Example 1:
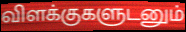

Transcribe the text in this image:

விளக்குகளுடனும்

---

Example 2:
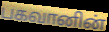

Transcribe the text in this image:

பகவானின்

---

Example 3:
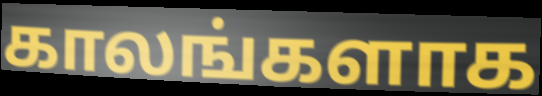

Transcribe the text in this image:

காலங்களாக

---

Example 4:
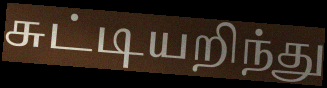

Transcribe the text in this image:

சுட்டியறிந்து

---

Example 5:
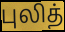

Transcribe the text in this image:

புலித்